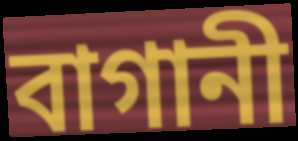
বাগানী